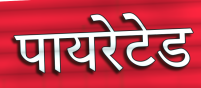
पायरेटेड